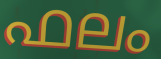
ഫലം